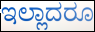
ಇಲ್ಲಾದರೂ